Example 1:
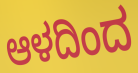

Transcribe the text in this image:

ಆಳದಿಂದ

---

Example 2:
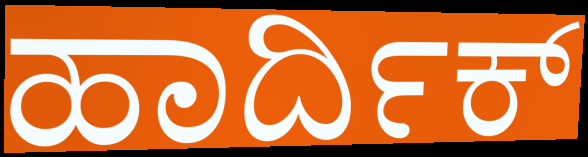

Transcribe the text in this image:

ಹಾರ್ದಿಕ್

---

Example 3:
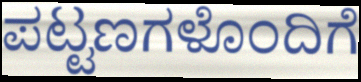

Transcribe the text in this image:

ಪಟ್ಟಣಗಳೊಂದಿಗೆ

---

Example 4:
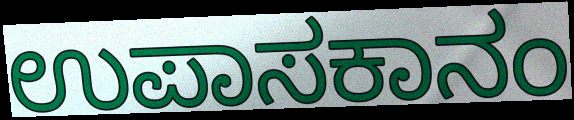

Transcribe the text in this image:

ಉಪಾಸಕಾನಂ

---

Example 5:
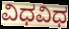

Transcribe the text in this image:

ವಿಧವಿಧ